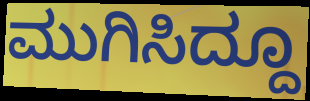
ಮುಗಿಸಿದ್ದೂ